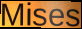
Mises